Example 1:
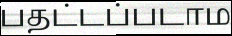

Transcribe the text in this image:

பதட்டப்படாம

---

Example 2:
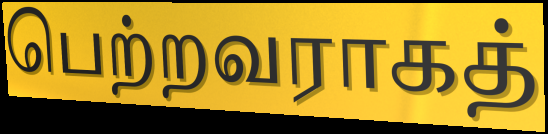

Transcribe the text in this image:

பெற்றவராகத்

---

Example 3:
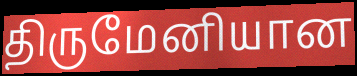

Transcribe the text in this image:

திருமேனியான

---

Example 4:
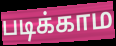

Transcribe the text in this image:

படிக்காம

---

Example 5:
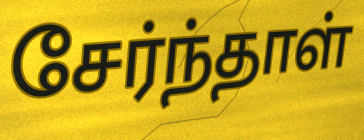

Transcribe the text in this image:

சேர்ந்தாள்